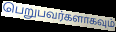
பெறுபவர்களாகவும்